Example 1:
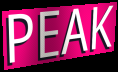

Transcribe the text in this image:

PEAK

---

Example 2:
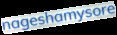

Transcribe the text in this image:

nageshamysore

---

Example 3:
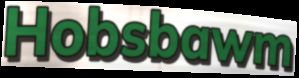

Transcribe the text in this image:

Hobsbawm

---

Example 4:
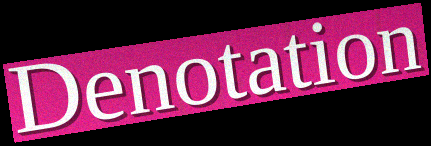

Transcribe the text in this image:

Denotation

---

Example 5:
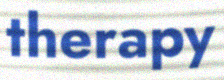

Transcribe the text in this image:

therapy